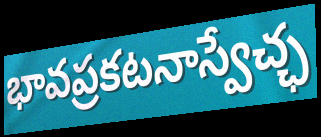
భావప్రకటనాస్వేచ్ఛ